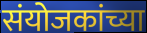
संयोजकांच्या